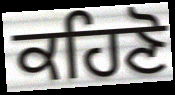
ਕਹਿਣੋ